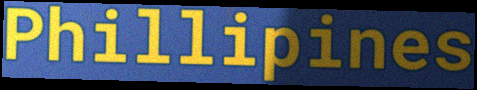
Phillipines